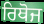
ਰਿਥੋਜ